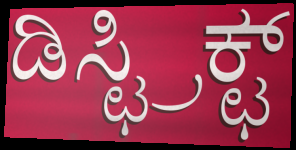
ಡಿಸ್ಟ್ರಿಕ್ಟ್